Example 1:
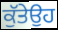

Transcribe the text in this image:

ਕੁੱਤੇਉਹ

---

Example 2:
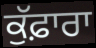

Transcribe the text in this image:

ਕੁੱਫ਼ਾਰਾ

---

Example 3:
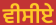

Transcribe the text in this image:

ਵੀਸੀਏ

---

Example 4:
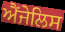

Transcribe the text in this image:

ਐਂਜੇਲਿਸ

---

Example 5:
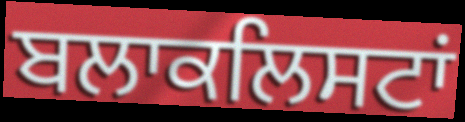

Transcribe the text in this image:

ਬਲਾਕਲਿਸਟਾਂ